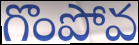
గొంపోవ